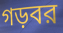
গড়বর